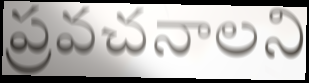
ప్రవచనాలని